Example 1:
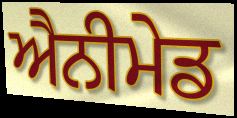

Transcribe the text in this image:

ਐਨੀਮੇਡ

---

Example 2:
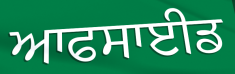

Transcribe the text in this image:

ਆਫਸਾਈਡ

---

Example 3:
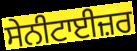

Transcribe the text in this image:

ਸੇਨੀਟਾਈਜ਼ਰ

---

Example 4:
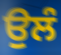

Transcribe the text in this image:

ਉਲੰ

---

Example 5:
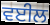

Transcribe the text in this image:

ਵਈਲ